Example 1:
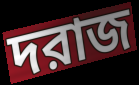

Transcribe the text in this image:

দরাজ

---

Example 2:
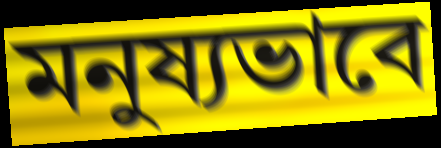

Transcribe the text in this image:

মনুষ্যভাবে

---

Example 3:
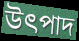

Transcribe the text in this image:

উৎপাদ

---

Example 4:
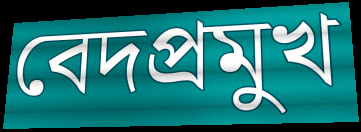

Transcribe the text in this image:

বেদপ্রমুখ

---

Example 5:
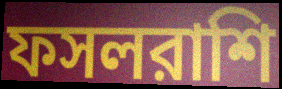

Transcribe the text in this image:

ফসলরাশি